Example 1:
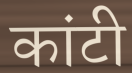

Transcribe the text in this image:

कांटी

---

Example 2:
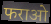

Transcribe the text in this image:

फराओ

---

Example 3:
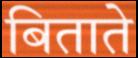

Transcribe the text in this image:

बिताते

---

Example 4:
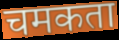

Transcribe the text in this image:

चमकता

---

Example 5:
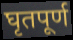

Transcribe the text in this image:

घृतपूर्ण